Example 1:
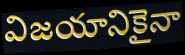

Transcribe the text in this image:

విజయానికైనా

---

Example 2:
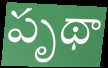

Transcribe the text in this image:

పృథా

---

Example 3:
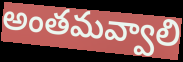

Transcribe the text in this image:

అంతమవ్వాలి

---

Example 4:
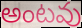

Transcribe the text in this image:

అంటవు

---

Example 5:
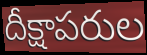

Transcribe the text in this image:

దీక్షాపరుల